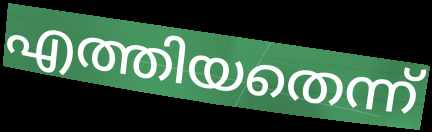
എത്തിയതെന്ന്